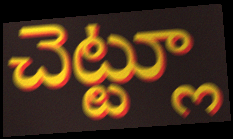
చెట్ట్లూ